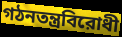
গঠনতন্ত্রবিরোধী